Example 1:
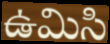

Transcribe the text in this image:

ఉమిసి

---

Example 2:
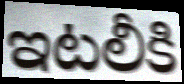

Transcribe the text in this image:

ఇటలీకి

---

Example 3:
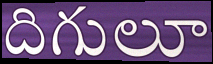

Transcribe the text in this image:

దిగులూ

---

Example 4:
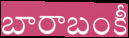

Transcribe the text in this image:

బారాబంకీ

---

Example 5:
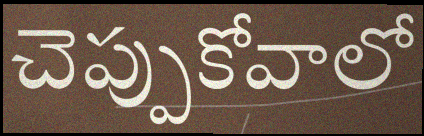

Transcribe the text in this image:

చెప్పుకోవాలో